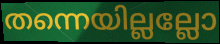
തന്നെയില്ലല്ലോ